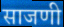
साजणी